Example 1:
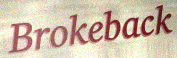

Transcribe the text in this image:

Brokeback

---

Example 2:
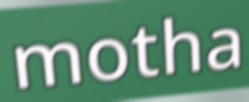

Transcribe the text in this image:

motha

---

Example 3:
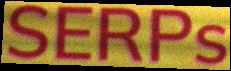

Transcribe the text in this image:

SERPs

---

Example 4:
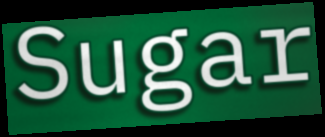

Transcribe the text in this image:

Sugar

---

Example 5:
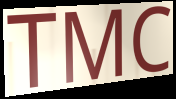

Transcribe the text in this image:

TMC